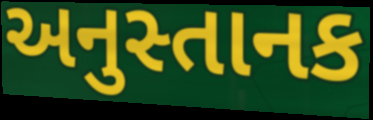
અનુસ્તાનક